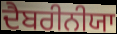
ਦੈਬਰੀਨੀਯਾ